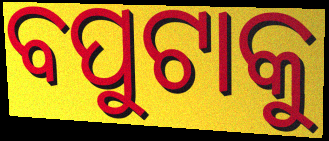
ବପୁଟାକୁ